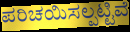
ಪರಿಚಯಿಸಲ್ಪಟ್ಟಿವೆ